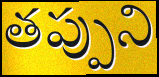
తప్పుని